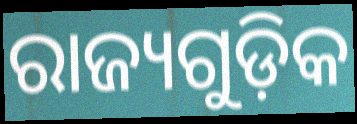
ରାଜ୍ୟଗୁଡ଼ିକ